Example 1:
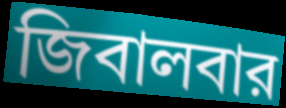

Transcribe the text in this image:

জিবালবার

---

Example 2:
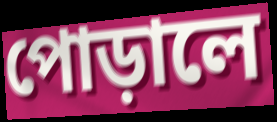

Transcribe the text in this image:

পোড়ালে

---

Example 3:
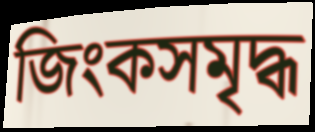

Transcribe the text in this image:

জিংকসমৃদ্ধ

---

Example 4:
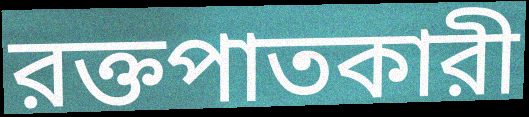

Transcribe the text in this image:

রক্তপাতকারী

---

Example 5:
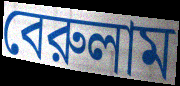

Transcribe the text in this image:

বেরুলাম